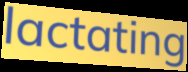
lactating